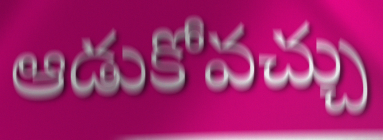
ఆడుకోవచ్చు